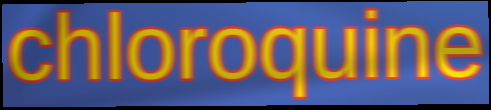
chloroquine